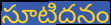
సూటిదనం